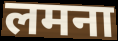
लमना